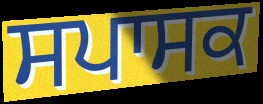
ਸਪਾਸਕ